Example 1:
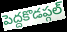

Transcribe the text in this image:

పెద్దకొడప్గల్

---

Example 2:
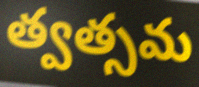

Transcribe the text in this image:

త్వత్సమ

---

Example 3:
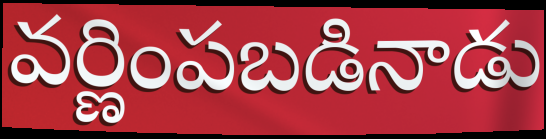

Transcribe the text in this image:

వర్ణింపబడినాడు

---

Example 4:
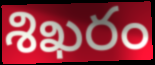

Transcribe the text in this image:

శిఖరం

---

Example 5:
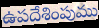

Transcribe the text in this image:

ఉపదేశింపుము